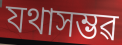
যথাসম্ভৱ